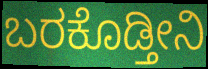
ಬರಕೊಡ್ತೀನಿ